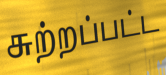
சுற்றப்பட்ட